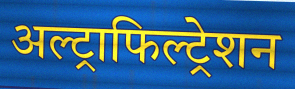
अल्ट्राफिल्ट्रेशन